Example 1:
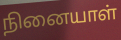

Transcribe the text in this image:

நினையாள்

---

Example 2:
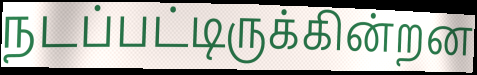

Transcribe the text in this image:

நடப்பட்டிருக்கின்றன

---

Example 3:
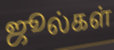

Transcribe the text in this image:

ஜூல்கள்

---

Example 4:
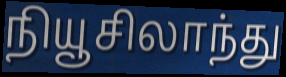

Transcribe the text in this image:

நியூசிலாந்து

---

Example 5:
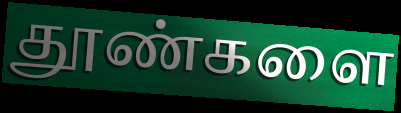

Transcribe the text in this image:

தூண்களை